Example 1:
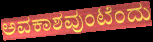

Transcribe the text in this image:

ಅವಕಾಶವುಂಟೆಂದು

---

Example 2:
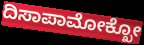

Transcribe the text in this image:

ದಿಸಾಪಾಮೋಕ್ಖೋ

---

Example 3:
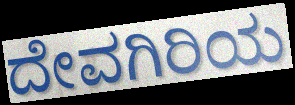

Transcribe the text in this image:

ದೇವಗಿರಿಯ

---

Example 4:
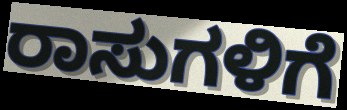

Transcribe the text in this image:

ರಾಸುಗಳಿಗೆ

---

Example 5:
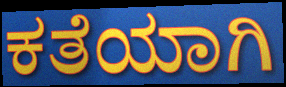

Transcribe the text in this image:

ಕತೆಯಾಗಿ